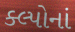
ક્લ્પોનાં